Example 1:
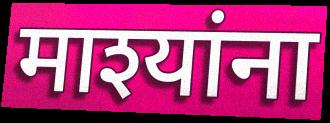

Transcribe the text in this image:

माश्यांना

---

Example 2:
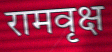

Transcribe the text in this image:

रामवृक्ष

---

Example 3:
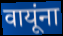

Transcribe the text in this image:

वायूंना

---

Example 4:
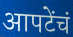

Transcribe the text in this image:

आपटेंचं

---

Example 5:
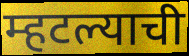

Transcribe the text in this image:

म्हटल्याची